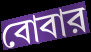
বোবার